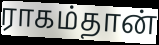
ராகம்தான்